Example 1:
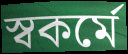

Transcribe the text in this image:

স্বকর্মে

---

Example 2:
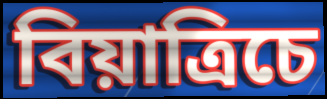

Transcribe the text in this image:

বিয়াত্রিচে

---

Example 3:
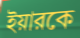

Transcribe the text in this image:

ইয়ারকে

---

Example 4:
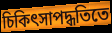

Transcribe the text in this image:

চিকিৎসাপদ্ধতিতে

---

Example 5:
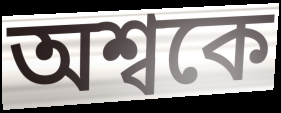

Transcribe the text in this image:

অশ্বকে